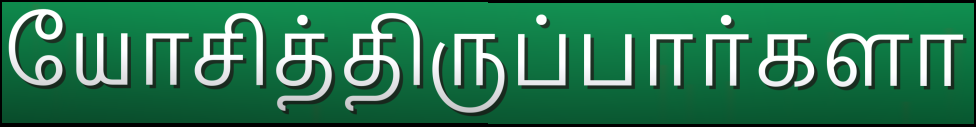
யோசித்திருப்பார்களா